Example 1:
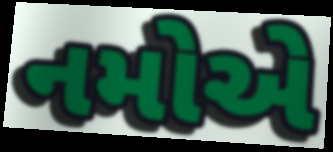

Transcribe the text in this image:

નમોએ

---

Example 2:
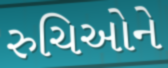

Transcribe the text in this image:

રુચિઓને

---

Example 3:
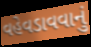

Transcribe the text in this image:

વહેવડાવવાનું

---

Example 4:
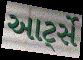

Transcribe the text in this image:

આર્ટ્સે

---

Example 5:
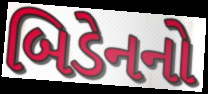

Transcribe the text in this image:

બિડેનનો